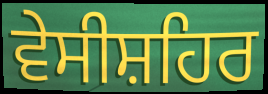
ਵੇਸੀਸ਼ਹਿਰ